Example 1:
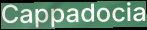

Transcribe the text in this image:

Cappadocia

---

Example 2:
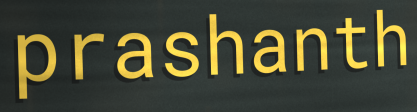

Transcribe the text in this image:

prashanth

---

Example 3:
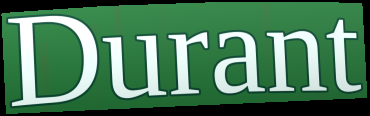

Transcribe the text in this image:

Durant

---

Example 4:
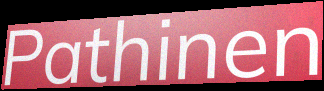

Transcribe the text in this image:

Pathinen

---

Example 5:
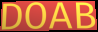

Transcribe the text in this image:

DOAB